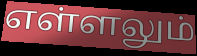
எள்ளலும்